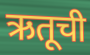
ऋतूची